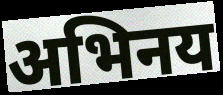
अभिनय